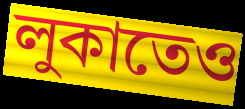
লুকাতেও